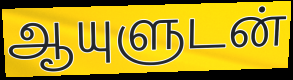
ஆயுளுடன்